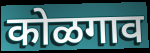
कोळगाव